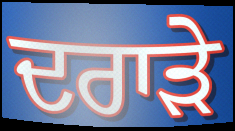
ਦਰਾੜੇ